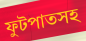
ফুটপাতসহ